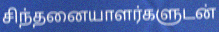
சிந்தனையாளர்களுடன்